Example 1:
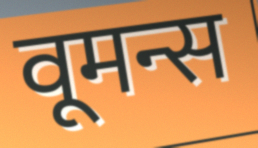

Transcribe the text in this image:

वूमन्स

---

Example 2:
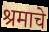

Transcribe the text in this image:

श्रमाचे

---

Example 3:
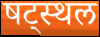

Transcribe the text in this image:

षट्स्थल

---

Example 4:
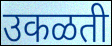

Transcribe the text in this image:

उकळती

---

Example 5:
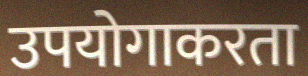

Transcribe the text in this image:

उपयोगाकरता